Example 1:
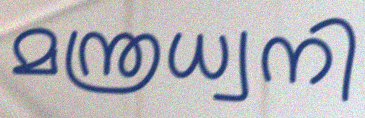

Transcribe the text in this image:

മന്ത്രധ്വനി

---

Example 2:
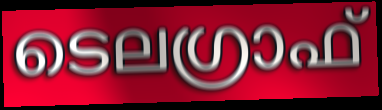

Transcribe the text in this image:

ടെലഗ്രാഫ്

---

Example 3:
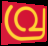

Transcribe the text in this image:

വ്ര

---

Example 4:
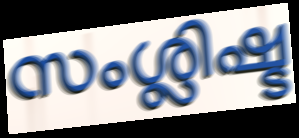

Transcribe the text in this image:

സംശ്ലിഷ്ട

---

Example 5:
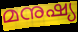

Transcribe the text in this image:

മനുഷ്യ